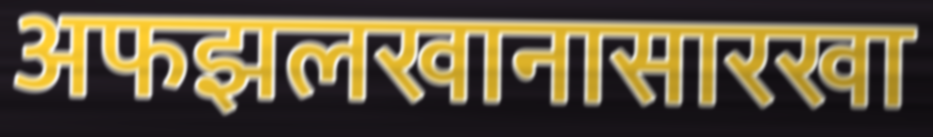
अफझलखानासारखा